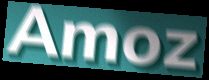
Amoz